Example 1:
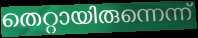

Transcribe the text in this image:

തെറ്റായിരുന്നെന്ന്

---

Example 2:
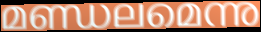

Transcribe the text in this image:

മണ്ഡലമെന്നു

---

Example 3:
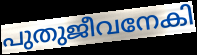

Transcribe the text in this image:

പുതുജീവനേകി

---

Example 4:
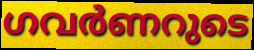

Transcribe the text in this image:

ഗവർണറുടെ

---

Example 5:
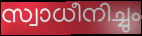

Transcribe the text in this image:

സ്വാധീനിച്ചും